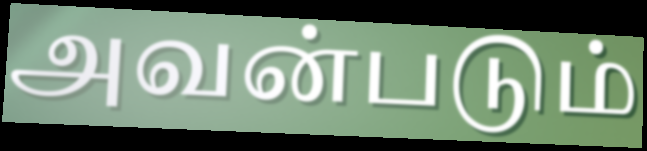
அவன்படும்